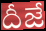
దీజే